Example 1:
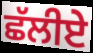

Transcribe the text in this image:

ਛੱਲੀਏ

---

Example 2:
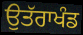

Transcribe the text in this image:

ਉਤੱਰਾਖੰਡ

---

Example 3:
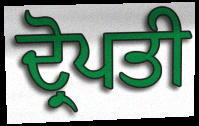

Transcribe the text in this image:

ਦ੍ਰੋਪਤੀ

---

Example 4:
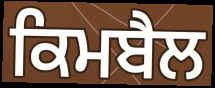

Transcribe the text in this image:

ਕਿਮਬੈਲ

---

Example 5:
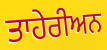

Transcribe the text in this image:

ਤਾਹੇਰੀਅਨ